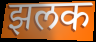
झलक